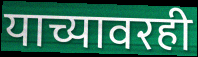
याच्यावरही